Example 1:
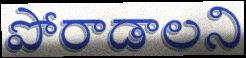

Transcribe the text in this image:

పోరాడాలని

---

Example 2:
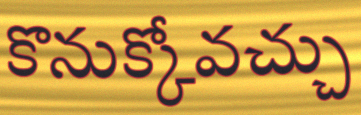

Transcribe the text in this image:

కొనుక్కోవచ్చు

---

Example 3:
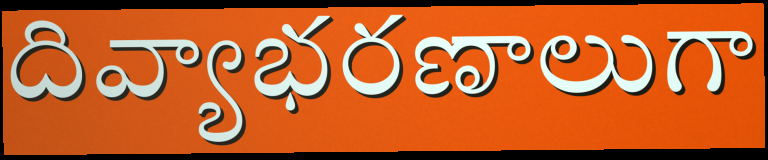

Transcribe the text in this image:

దివ్యాభరణాలుగా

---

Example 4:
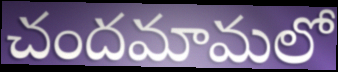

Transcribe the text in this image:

చందమామలో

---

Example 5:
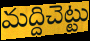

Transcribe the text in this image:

మద్దిచెట్టు